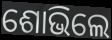
ଶୋଭିଲେ